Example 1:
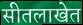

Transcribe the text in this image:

सीतलाखेत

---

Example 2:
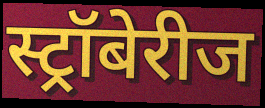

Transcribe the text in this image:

स्ट्रॉबेरीज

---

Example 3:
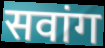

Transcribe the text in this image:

सवांग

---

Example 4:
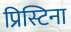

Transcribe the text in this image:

प्रिस्टिना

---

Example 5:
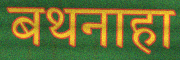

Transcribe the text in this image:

बथनाहा